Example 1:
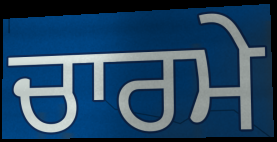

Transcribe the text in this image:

ਚਾਰਮੇ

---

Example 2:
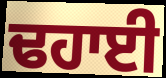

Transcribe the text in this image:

ਢਹਾਈ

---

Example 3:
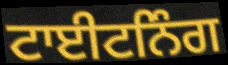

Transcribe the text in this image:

ਟਾਈਟਨਿੰਗ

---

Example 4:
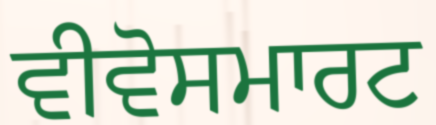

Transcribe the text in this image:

ਵੀਵੋਸਮਾਰਟ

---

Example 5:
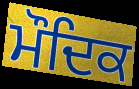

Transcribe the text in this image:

ਮੌਦਿਕ